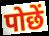
पोछें